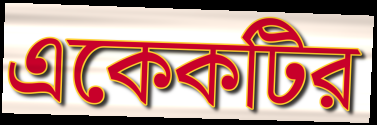
একেকটির